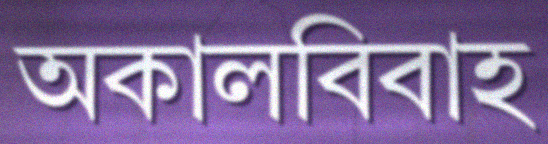
অকালবিবাহ